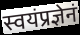
स्वयंप्रज्ञेनं